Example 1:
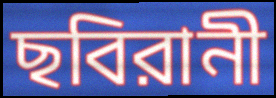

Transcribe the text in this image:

ছবিরানী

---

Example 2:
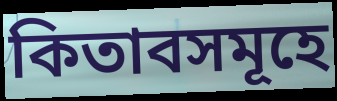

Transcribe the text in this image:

কিতাবসমূহে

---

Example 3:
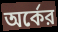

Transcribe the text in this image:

অর্কের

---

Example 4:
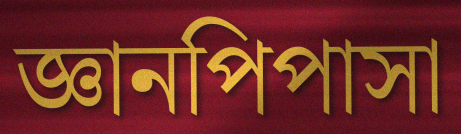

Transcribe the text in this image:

জ্ঞানপিপাসা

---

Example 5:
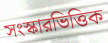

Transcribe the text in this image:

সংস্কারভিত্তিক